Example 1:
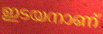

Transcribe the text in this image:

ഇടയനാണ്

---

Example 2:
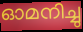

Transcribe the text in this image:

ഓമനിച്ചു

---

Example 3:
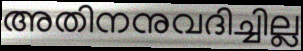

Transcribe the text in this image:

അതിനനുവദിച്ചില്ല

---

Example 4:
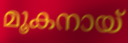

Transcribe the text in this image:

മൂകനായ്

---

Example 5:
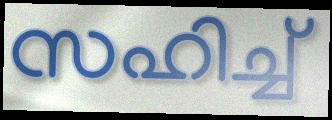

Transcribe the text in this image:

സഹിച്ച്